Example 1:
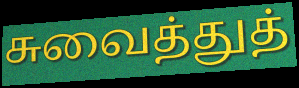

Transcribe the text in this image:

சுவைத்துத்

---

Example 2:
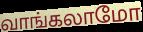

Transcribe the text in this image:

வாங்கலாமோ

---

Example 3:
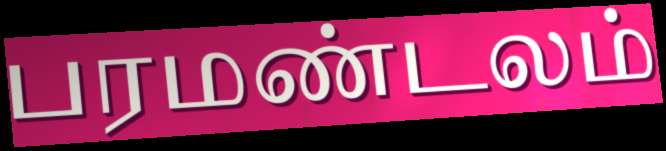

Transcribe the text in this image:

பரமண்டலம்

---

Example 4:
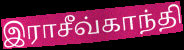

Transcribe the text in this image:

இராசீவ்காந்தி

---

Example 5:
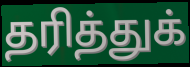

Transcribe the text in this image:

தரித்துக்